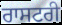
ਰਾਸਟਰੀ